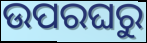
ଉପରଘରୁ